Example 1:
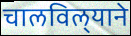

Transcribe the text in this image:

चालविल्याने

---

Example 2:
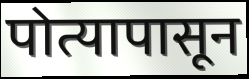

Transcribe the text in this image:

पोत्यापासून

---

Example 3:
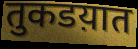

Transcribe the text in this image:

तुकडय़ात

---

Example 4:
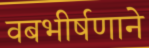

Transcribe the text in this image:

वबभीर्षणाने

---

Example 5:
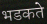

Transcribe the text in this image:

भडकते